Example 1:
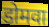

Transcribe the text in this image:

डोमवा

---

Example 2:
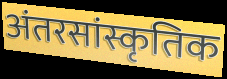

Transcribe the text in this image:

अंतरसांस्कृतिक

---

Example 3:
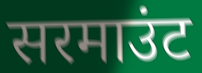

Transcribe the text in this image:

सरमाउंट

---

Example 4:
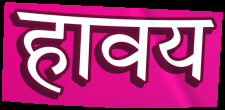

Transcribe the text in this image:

हावय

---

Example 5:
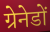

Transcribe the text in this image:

ग्रेनेडों